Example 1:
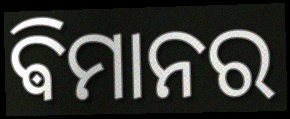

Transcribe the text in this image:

ଵିମାନର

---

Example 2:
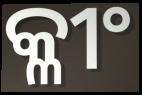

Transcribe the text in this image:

କ୍ଳୀଂ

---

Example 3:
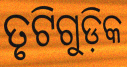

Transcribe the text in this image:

ତୃଟିଗୁଡ଼ିକ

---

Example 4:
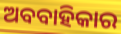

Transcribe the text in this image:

ଅବବାହିକାର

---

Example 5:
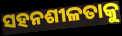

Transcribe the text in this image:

ସହନଶୀଳତାକୁ